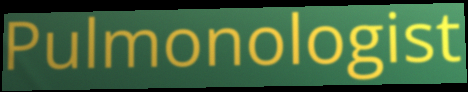
Pulmonologist